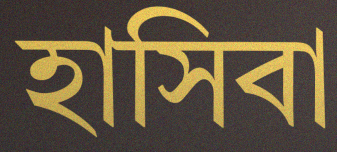
হাসিবা